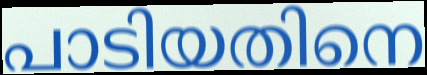
പാടിയതിനെ